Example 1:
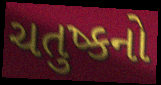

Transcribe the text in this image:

ચતુષ્કનો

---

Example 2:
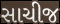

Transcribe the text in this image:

સાચીજ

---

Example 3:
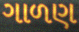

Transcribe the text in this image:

ગાળણ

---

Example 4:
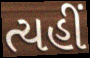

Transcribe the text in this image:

ત્યહીં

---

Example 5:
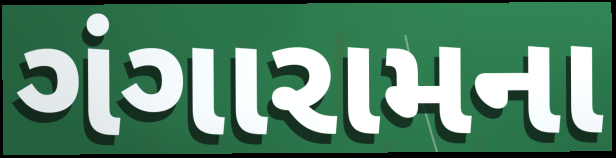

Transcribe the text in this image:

ગંગારામના